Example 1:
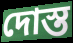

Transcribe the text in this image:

দোস্ত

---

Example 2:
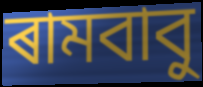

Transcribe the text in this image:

ৰামবাবু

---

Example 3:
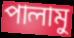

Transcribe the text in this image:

পালামু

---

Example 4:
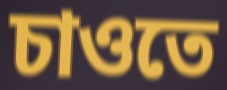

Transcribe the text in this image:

চাওতে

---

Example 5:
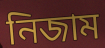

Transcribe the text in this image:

নিজাম